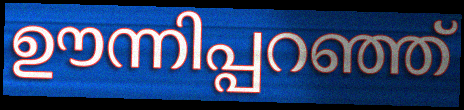
ഊന്നിപ്പറഞ്ഞ്